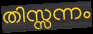
തിസ്സന്നം